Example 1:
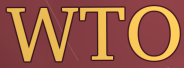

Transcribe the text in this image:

WTO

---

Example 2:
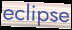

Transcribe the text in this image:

eclipse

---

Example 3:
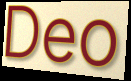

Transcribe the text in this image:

Deo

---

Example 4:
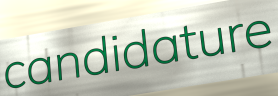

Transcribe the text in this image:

candidature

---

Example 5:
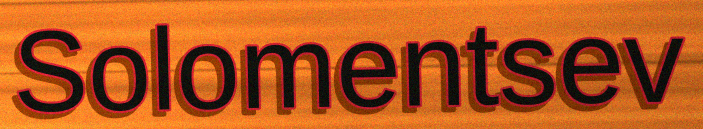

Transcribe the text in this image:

Solomentsev